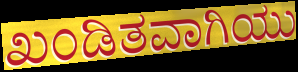
ಖಂಡಿತವಾಗಿಯು